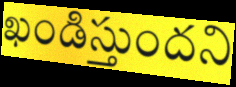
ఖండిస్తుందని